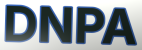
DNPA